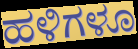
ಹಳಿಗಳೂ